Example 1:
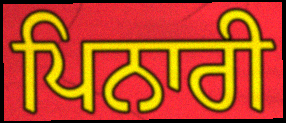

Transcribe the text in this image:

ਪਿਨਾਰੀ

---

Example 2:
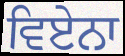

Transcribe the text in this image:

ਵਿਏਨਾ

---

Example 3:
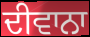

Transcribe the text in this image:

ਦੀਵਾਨਾ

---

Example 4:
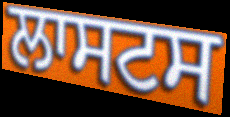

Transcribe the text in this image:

ਲਾਸਟਸ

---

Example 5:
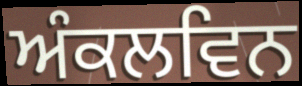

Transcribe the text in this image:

ਅੰਕਲਵਿਨ